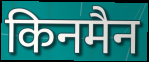
किनमैन